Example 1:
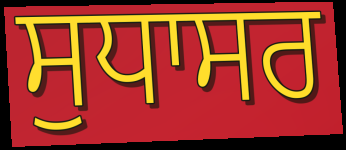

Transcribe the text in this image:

ਸੁਧਾਸਰ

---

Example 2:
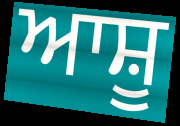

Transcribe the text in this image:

ਆਸ਼ੂ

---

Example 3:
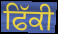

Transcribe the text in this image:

ਫਿੱਕੀ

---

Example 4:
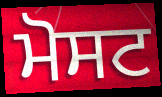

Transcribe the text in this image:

ਮੋਸਟ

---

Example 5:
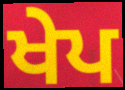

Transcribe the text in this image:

ਖੇਪ